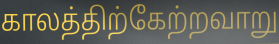
காலத்திற்கேற்றவாறு